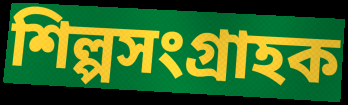
শিল্পসংগ্রাহক